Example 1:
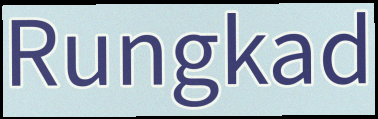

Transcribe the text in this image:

Rungkad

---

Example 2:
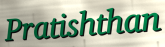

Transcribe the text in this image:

Pratishthan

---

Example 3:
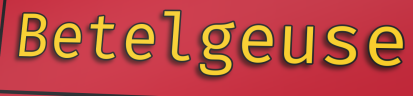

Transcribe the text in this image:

Betelgeuse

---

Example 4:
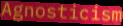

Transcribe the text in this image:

Agnosticism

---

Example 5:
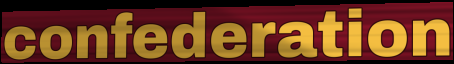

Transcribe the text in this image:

confederation